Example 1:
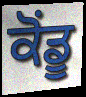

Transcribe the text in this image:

ਕੋਂਡੂ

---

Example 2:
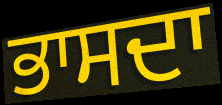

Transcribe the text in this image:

ਭਾਸਦਾ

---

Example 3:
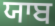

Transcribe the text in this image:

ਯਾਬ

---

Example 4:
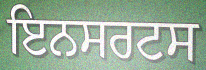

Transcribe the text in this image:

ਇਨਸਰਟਸ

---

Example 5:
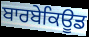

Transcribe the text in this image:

ਬਾਰਬੇਕਿਊਡ